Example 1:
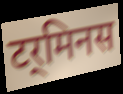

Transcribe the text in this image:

टर्मिनस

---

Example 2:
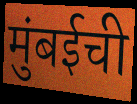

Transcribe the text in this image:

मुंबईची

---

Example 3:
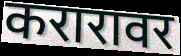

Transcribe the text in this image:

करारावर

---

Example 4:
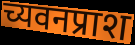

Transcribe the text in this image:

च्यवनप्राश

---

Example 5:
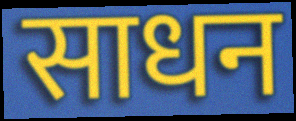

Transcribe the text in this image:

साधन